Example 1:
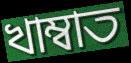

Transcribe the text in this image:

খাম্বাত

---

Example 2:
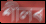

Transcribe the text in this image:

শীলৰ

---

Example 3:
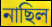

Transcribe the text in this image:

নাছিল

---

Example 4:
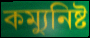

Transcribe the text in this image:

কম্যুনিষ্ট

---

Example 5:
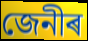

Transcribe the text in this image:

জেনীৰ